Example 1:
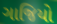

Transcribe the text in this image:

ગાજિયો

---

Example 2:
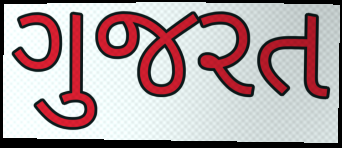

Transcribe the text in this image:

ગુજરત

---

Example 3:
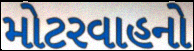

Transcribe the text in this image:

મોટરવાહનો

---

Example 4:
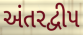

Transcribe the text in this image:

અંતરદ્વીપ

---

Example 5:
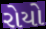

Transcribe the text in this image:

રોયો